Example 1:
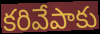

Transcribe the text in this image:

కరివేపాకు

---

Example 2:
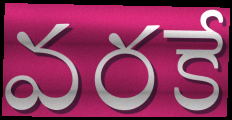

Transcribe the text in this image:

వరకే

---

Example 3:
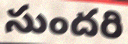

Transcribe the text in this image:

సుందరి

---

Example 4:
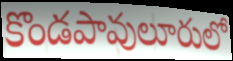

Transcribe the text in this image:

కొండపావులూరులో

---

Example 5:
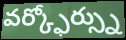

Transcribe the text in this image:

వర్క్ఫోర్స్ను